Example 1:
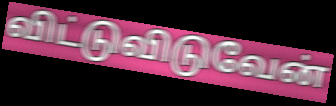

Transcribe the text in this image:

விட்டுவிடுவேன்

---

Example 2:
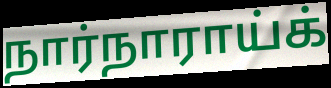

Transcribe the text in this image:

நார்நாராய்க்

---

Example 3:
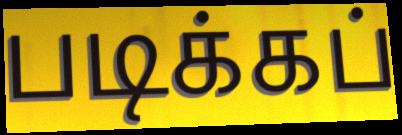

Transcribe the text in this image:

படிக்கப்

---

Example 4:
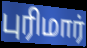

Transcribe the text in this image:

புரிமார்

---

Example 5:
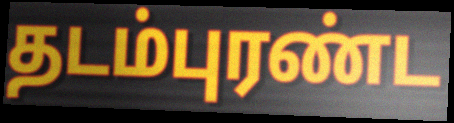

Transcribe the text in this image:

தடம்புரண்ட